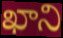
ఖాని